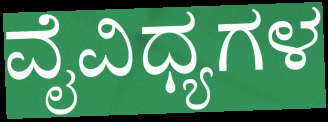
ವೈವಿಧ್ಯಗಳ